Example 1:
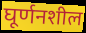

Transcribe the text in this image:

घूर्णनशील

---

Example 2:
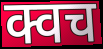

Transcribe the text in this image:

क्वच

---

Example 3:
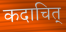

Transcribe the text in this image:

कदाचित्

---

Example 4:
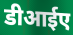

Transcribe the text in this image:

डीआईए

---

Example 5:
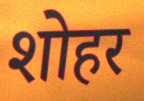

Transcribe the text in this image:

शोहर